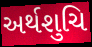
અર્થશુચિ